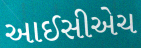
આઈસીએચ